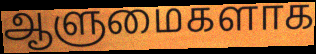
ஆளுமைகளாக